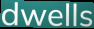
dwells